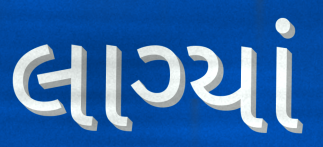
લાગ્યાં